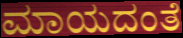
ಮಾಯದಂತೆ